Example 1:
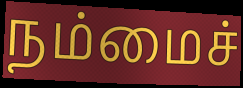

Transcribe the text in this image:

நம்மைச்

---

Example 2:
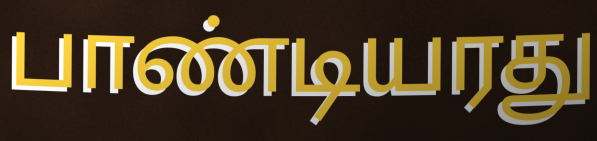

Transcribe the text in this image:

பாண்டியரது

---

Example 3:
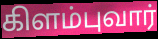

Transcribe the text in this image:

கிளம்புவார்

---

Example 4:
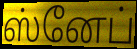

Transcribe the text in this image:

ஸ்னேப்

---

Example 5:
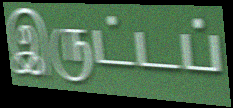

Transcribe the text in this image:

இருட்டப்